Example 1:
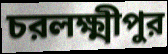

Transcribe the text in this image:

চরলক্ষ্মীপুর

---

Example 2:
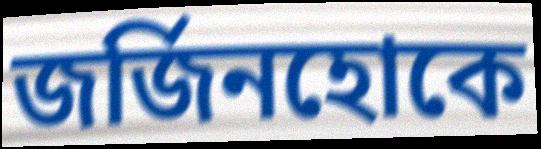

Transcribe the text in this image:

জর্জিনহোকে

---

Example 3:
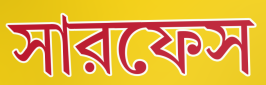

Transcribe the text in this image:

সারফেস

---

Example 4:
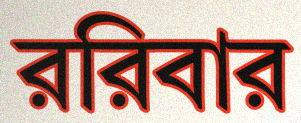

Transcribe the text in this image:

ররিবার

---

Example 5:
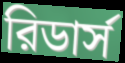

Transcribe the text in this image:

রিডার্স